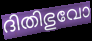
ദിതിഭുവോ